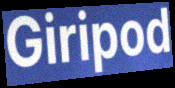
Giripod